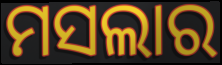
ମସଲାର